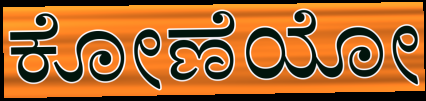
ಕೋಣೆಯೋ